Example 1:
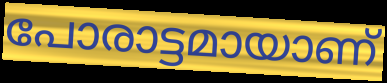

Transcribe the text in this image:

പോരാട്ടമായാണ്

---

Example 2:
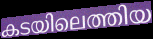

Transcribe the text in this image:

കടയിലെത്തിയ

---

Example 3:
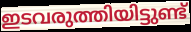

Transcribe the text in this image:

ഇടവരുത്തിയിട്ടുണ്ട്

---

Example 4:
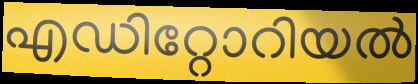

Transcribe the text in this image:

എഡിറ്റോറിയൽ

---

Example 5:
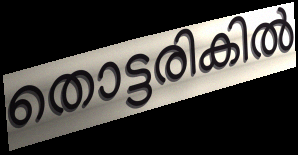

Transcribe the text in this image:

തൊട്ടരികിൽ